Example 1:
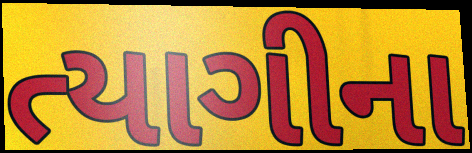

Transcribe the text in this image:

ત્યાગીના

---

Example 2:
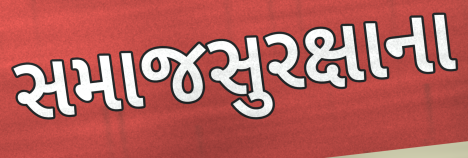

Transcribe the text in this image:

સમાજસુરક્ષાના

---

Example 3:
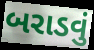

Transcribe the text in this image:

બરાડવું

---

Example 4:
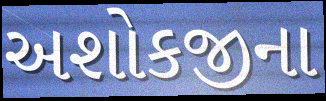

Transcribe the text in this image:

અશોકજીના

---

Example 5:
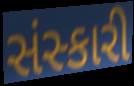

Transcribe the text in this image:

સંસ્કારી